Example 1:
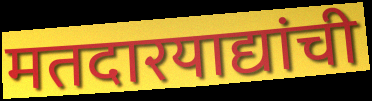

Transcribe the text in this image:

मतदारयाद्यांची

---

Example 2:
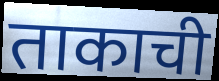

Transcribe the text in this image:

ताकाची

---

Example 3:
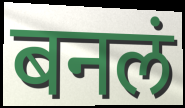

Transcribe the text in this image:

बनलं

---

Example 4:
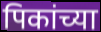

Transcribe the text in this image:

पिकांच्या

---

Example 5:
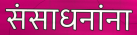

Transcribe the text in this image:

संसाधनांना